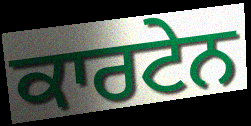
ਕਾਰਟੇਨ